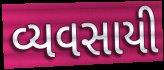
વ્યવસાયી